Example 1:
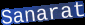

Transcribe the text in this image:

Sanarat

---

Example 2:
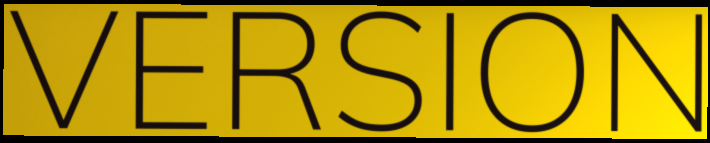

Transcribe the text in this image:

VERSION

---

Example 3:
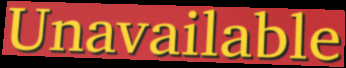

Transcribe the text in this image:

Unavailable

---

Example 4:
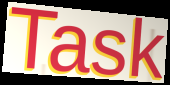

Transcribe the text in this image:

Task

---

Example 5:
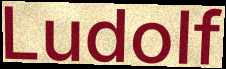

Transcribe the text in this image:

Ludolf